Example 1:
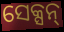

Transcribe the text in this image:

ସେକ୍ସନ୍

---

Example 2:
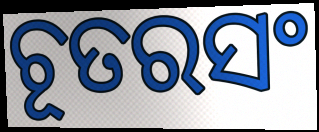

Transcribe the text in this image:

ଚୂତରସଂ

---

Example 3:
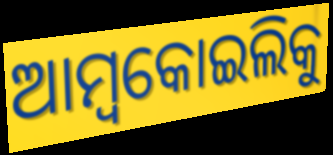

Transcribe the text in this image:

ଆମ୍ବକୋଇଲିକୁ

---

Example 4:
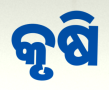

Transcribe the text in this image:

କୃଷି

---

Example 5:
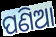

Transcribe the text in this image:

ପଣିଆ